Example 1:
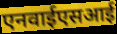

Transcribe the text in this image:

एनवाईएसआई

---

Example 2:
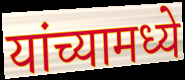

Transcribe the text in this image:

यांच्यामध्ये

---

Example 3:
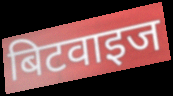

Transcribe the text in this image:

बिटवाइज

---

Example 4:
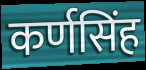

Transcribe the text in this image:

कर्णसिंह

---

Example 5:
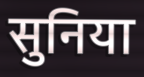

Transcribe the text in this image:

सुनिया